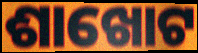
ଶାଖୋଟ